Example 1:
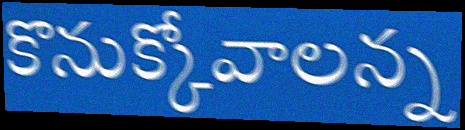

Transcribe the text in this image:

కొనుక్కోవాలన్న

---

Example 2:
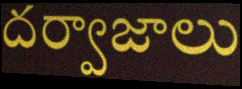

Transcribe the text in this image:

దర్వాజాలు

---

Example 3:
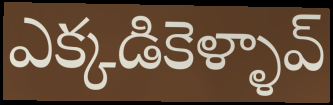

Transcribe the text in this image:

ఎక్కడికెళ్ళావ్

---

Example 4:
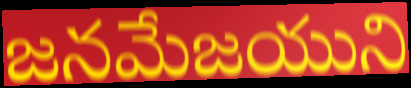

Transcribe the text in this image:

జనమేజయుని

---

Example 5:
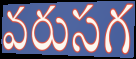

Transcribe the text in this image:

వరుసగ